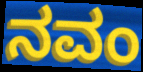
ನವಂ